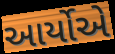
આર્યોએ